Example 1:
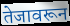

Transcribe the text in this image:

तेजावरून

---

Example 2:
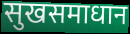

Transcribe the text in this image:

सुखसमाधान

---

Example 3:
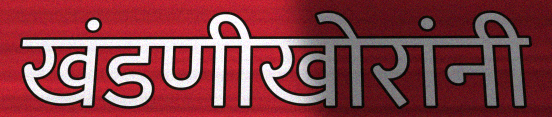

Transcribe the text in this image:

खंडणीखोरांनी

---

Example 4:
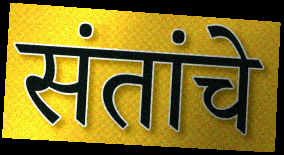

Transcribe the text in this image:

संतांचे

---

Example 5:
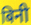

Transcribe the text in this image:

बिनी